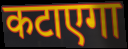
कटाएगा